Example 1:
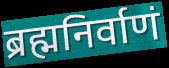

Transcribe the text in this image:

ब्रह्मनिर्वाणं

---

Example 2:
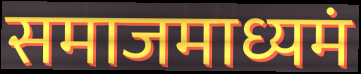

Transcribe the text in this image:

समाजमाध्यमं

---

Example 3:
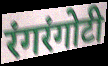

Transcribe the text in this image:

रंगरंगोटी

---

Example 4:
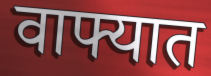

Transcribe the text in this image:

वाफ्यात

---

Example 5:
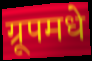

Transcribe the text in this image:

ग्रूपमधे